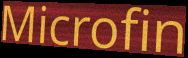
Microfin